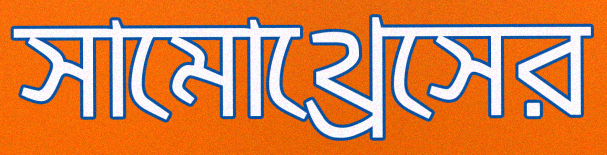
সামোথ্রেসের